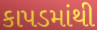
કાપડમાંથી